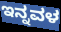
ಇನ್ನವಳ